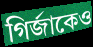
গির্জাকেও